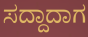
ಸದ್ದಾದಾಗ